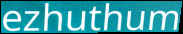
ezhuthum